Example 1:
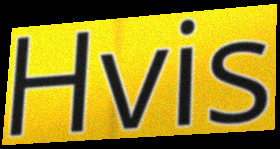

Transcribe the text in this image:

Hvis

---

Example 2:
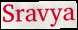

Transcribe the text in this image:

Sravya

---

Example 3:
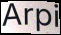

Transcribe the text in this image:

Arpi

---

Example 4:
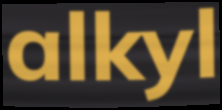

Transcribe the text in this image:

alkyl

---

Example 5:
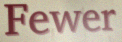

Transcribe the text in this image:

Fewer